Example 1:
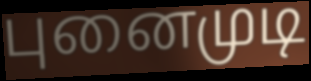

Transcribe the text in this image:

புனைமுடி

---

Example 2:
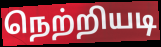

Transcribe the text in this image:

நெற்றியடி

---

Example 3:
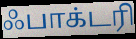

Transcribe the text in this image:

ஃபாக்டரி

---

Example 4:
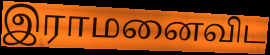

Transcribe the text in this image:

இராமனைவிட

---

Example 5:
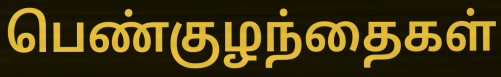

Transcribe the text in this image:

பெண்குழந்தைகள்